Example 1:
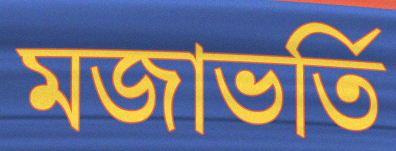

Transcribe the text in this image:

মজাভর্তি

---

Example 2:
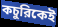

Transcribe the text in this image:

কচুরিকেই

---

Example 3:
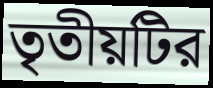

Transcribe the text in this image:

তৃতীয়টির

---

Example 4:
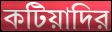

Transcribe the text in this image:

কটিয়াদির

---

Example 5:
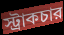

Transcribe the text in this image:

স্ট্রাকচার